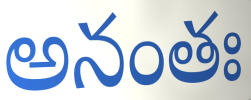
అనంతః